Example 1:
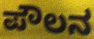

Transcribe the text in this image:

ಪೌಲನ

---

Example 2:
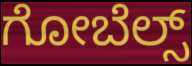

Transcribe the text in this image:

ಗೋಬೆಲ್ಸ್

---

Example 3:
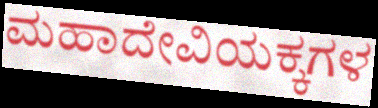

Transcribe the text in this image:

ಮಹಾದೇವಿಯಕ್ಕಗಳ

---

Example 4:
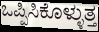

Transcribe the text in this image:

ಒಪ್ಪಿಸಿಕೊಳ್ಳುತ್ತ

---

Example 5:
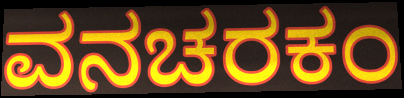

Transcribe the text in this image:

ವನಚರಕಂ